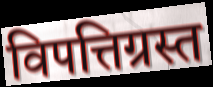
विपत्तिग्रस्त